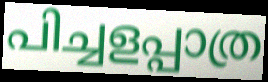
പിച്ചളപ്പാത്ര